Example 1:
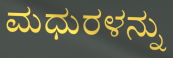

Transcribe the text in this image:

ಮಧುರಳನ್ನು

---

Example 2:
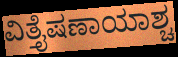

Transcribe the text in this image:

ವಿತ್ತೈಷಣಾಯಾಶ್ಚ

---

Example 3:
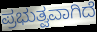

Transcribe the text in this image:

ಪ್ರಭುತ್ವವಾಗಿದೆ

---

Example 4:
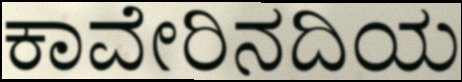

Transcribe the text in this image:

ಕಾವೇರಿನದಿಯ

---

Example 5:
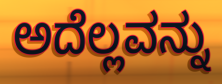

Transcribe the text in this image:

ಅದೆಲ್ಲವನ್ನು